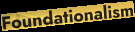
Foundationalism